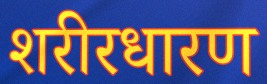
शरीरधारण